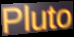
Pluto